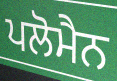
ਪਲੋਮੈਨ